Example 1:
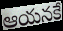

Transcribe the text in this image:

ఆయనకే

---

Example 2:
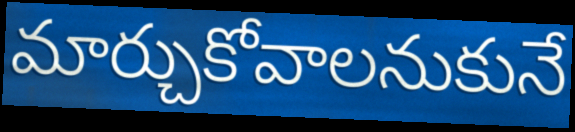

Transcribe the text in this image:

మార్చుకోవాలనుకునే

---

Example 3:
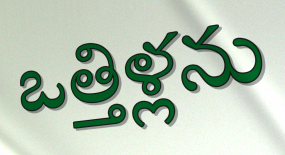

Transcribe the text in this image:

ఒత్తిళ్లను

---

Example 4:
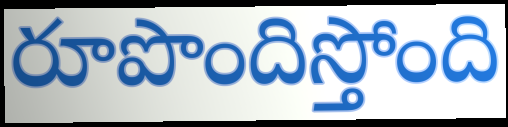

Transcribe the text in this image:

రూపొందిస్తోంది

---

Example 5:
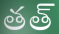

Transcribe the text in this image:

తత్